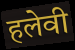
हलेवी